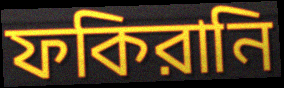
ফকিরানি